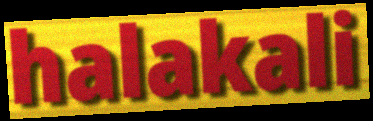
halakali